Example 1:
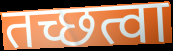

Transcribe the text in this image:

तच्छत्वा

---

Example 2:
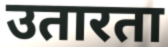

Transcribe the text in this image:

उतारता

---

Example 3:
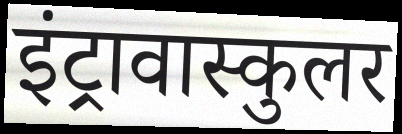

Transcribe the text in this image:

इंट्रावास्कुलर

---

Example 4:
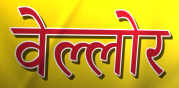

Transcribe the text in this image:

वेल्लोर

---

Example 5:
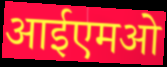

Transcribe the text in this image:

आईएमओ